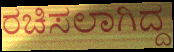
ರಚಿಸಲಾಗಿದ್ದ